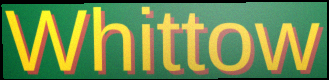
Whittow